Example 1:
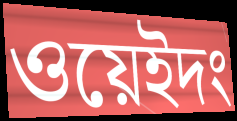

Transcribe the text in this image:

ওয়েইদং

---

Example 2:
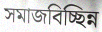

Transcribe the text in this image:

সমাজবিচ্ছিন্ন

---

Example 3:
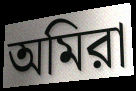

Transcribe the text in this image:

অমিরা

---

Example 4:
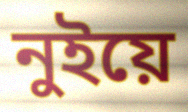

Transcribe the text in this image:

নুইয়ে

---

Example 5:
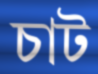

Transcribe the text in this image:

চাট